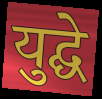
युद्घे